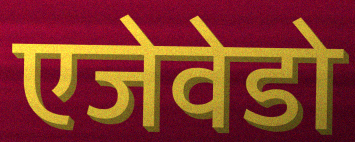
एजेवेडो